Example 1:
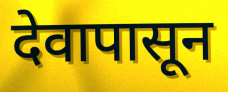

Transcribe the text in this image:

देवापासून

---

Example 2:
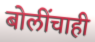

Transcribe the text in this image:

बोलींचाही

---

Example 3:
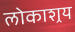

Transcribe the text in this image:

लोकाश्रय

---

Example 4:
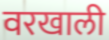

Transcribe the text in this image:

वरखाली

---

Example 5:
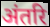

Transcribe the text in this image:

अंतरि